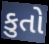
કુતો